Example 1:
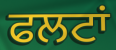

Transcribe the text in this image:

ਫਲਟਾਂ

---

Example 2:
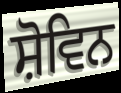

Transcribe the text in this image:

ਸ਼ੋਵਿਨ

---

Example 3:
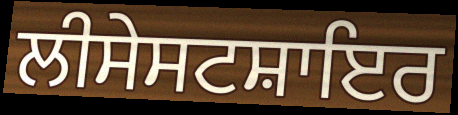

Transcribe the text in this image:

ਲੀਸੇਸਟਸ਼ਾਇਰ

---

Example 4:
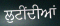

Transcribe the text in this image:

ਲੁਟੀਂਦੀਆਂ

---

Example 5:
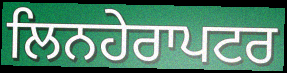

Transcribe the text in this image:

ਲਿਨਹੇਰਾਪਟਰ